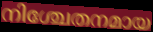
നിശ്ചേതനമായ